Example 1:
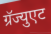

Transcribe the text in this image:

ग्रॅज्युएट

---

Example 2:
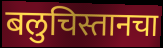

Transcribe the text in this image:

बलुचिस्तानचा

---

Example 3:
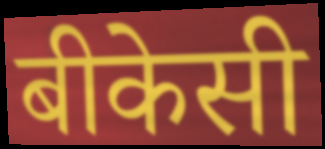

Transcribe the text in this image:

बीकेसी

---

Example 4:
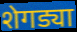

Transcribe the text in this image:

शेगड्या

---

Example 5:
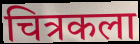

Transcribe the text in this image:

चित्रकला